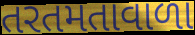
તરતમતાવાળા